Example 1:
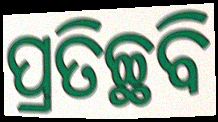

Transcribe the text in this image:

ପ୍ରତିଚ୍ଛବି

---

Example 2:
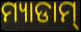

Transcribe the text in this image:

ମ୍ଯାଡାମ୍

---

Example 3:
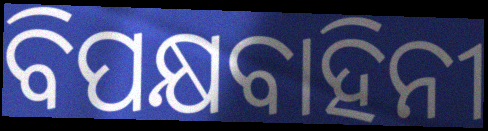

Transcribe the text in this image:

ବିପକ୍ଷବାହିନୀ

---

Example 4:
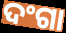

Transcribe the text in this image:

ଦଂଗା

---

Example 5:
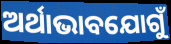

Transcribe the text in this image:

ଅର୍ଥାଭାବଯୋଗୁଁ